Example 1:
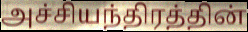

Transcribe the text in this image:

அச்சியந்திரத்தின்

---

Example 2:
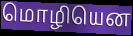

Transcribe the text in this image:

மொழியென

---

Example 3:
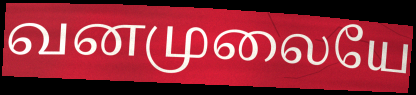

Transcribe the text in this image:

வனமுலையே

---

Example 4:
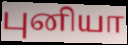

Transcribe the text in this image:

புனியா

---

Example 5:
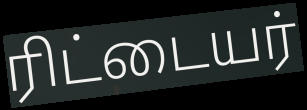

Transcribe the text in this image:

ரிட்டையர்